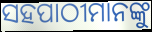
ସହପାଠୀମାନଙ୍କୁ